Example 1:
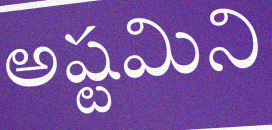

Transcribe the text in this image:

అష్టమిని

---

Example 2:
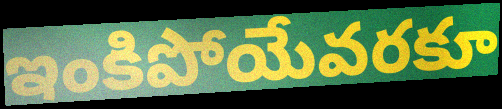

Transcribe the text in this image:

ఇంకిపోయేవరకూ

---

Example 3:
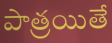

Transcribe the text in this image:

పాత్రయితే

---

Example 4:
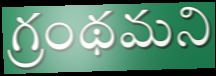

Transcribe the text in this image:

గ్రంథమని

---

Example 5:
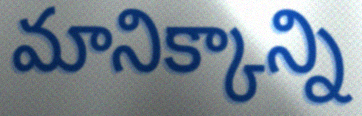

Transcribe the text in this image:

మానిక్కాన్ని